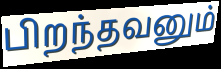
பிறந்தவனும்